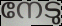
നേടു